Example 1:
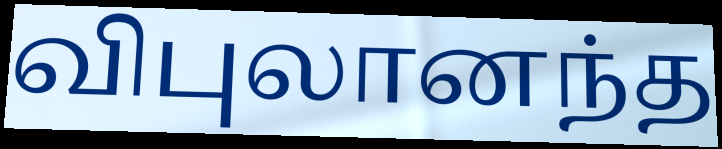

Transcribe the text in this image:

விபுலானந்த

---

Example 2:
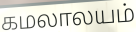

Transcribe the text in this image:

கமலாலயம்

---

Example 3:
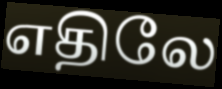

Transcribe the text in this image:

எதிலே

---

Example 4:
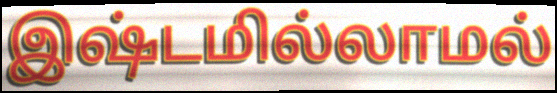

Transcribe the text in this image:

இஷ்டமில்லாமல்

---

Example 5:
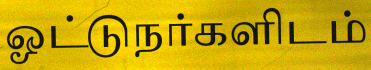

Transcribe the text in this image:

ஓட்டுநர்களிடம்